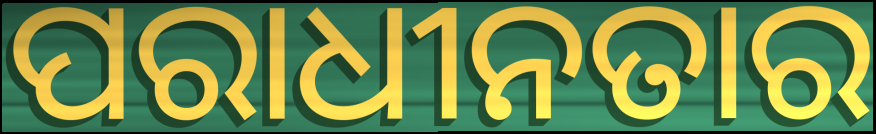
ପରାଧୀନତାର